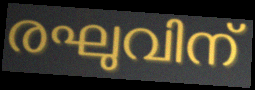
രഘുവിന്